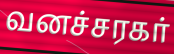
வனச்சரகர்